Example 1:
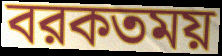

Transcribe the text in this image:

বরকতময়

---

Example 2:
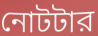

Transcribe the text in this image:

নোটটার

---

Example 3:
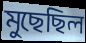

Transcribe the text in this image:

মুছেছিল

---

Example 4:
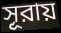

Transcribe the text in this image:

সূরায়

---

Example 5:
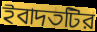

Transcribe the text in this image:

ইবাদতটির